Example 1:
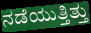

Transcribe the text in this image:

ನಡೆಯುತ್ತಿತ್ತು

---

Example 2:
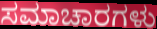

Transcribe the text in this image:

ಸಮಾಚಾರಗಳು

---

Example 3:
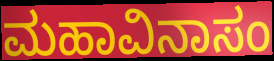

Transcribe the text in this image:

ಮಹಾವಿನಾಸಂ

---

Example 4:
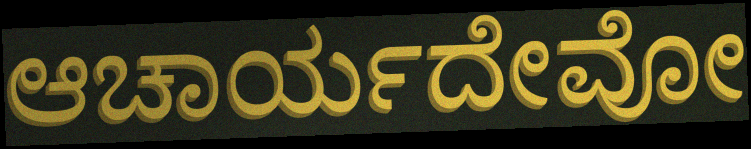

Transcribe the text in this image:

ಆಚಾರ್ಯದೇವೋ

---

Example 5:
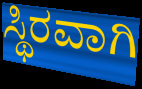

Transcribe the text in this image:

ಸ್ಥಿರವಾಗಿ